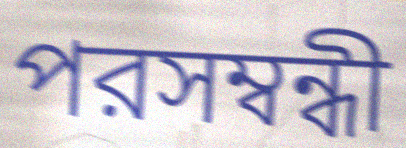
পরসম্বন্ধী